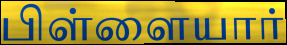
பிள்ளையார்